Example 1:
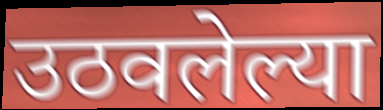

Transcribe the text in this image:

उठवलेल्या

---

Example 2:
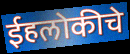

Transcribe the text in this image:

ईहलोकीचे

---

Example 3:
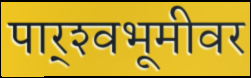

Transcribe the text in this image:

पार्श्वभूमीवर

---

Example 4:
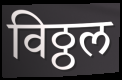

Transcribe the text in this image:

विठ्ठल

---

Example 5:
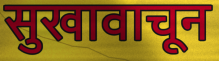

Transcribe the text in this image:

सुखावाचून